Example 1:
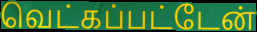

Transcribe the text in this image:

வெட்கப்பட்டேன்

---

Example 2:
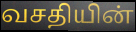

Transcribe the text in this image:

வசதியின்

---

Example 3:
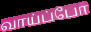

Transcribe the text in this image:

வாய்ப்போ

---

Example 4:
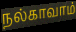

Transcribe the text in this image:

நல்காவாம்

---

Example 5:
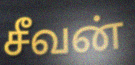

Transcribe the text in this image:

சீவன்